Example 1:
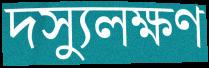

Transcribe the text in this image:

দস্যুলক্ষণ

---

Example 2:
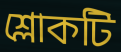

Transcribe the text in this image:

শ্লোকটি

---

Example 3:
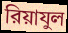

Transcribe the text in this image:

রিয়াযুল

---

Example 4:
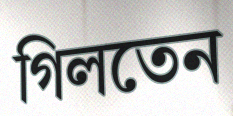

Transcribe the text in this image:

গিলতেন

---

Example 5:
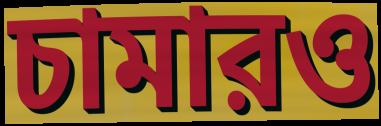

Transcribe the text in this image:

চামারও